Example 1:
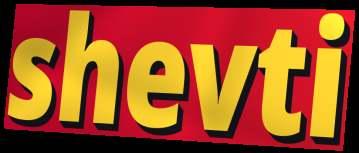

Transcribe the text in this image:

shevti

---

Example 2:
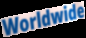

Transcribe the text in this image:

Worldwide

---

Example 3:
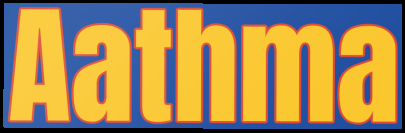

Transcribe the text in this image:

Aathma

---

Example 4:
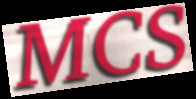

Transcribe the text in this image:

MCS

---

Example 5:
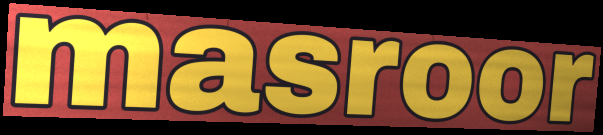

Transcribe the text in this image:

masroor